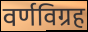
वर्णविग्रह